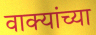
वाक्यांच्या